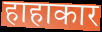
हाहाकार